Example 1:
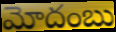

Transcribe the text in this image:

మోదంబు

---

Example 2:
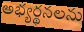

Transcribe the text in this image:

అభ్యర్థనలను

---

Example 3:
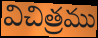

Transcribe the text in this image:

విచిత్రము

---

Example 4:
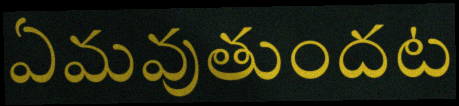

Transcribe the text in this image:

ఏమవుతుందట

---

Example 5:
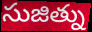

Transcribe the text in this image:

సుజిత్ను